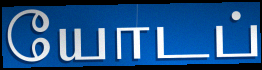
யோடப்